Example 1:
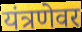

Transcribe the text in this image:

यंत्रणेवर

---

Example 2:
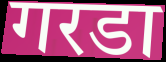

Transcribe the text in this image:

गरडा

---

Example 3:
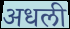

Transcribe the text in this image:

अधली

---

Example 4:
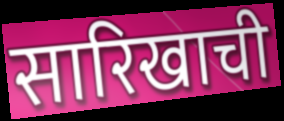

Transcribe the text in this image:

सारिखाची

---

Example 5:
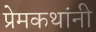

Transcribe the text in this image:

प्रेमकथांनी